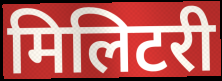
मिलिटरी